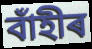
বাঁহীৰ